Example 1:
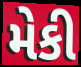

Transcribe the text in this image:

મેકી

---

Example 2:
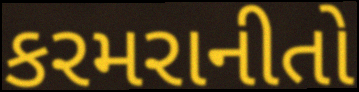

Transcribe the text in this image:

કરમરાનીતો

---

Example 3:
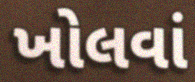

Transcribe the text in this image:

ખોલવાં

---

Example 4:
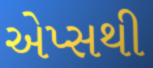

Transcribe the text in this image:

એપ્સથી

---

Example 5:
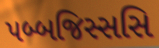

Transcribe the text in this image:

પબ્બજિસ્સસિ